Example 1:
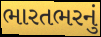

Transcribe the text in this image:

ભારતભરનું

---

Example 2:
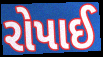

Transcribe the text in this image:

રોપાઈ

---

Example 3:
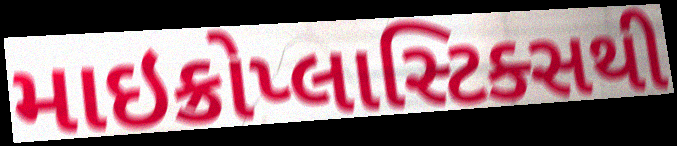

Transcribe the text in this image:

માઇક્રોપ્લાસ્ટિક્સથી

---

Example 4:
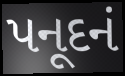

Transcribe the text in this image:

પનૂદનં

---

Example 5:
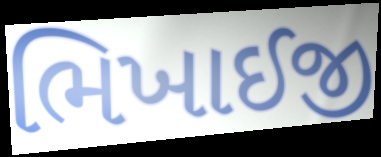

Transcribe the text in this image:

ભિખાઈજી